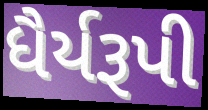
ધૈર્યરૂપી